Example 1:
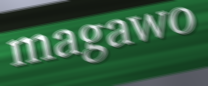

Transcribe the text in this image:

magawo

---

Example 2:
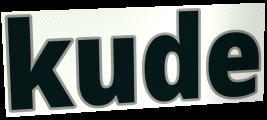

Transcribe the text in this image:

kude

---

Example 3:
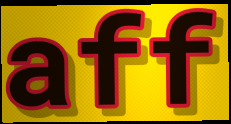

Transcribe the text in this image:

aff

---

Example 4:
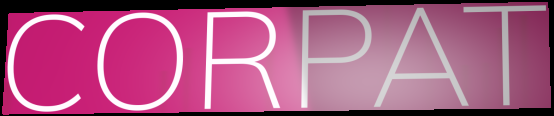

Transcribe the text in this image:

CORPAT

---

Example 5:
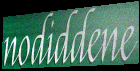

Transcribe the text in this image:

nodiddene